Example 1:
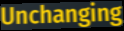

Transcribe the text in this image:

Unchanging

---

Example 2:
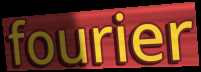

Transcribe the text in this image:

fourier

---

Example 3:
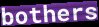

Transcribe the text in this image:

bothers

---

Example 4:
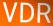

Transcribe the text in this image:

VDR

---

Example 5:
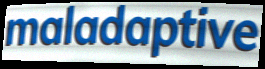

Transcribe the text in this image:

maladaptive